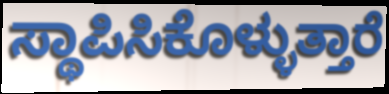
ಸ್ಥಾಪಿಸಿಕೊಳ್ಳುತ್ತಾರೆ